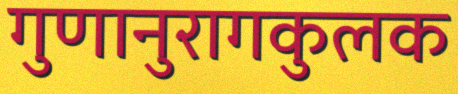
गुणानुरागकुलक